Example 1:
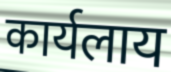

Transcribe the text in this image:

कार्यलाय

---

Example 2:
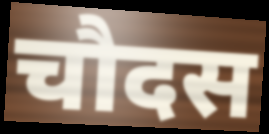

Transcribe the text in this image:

चौदस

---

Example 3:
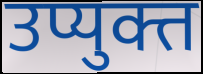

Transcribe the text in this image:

उप्युक्त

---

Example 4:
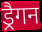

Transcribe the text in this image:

ड्रैगन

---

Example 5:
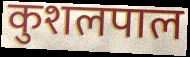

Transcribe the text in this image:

कुशलपाल